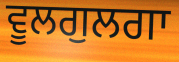
ਵੂਲਗੁਲਗਾ